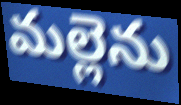
మల్లెను